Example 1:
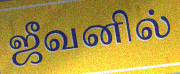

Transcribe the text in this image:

ஜீவனில்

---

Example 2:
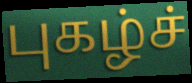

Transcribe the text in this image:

புகழ்ச்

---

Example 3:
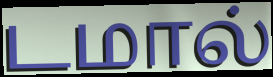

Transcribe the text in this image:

டமால்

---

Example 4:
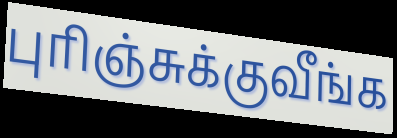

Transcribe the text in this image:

புரிஞ்சுக்குவீங்க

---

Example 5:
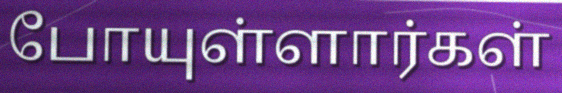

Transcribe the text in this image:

போயுள்ளார்கள்